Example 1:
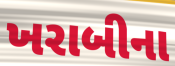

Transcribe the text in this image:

ખરાબીના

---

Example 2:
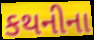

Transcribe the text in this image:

કથનીના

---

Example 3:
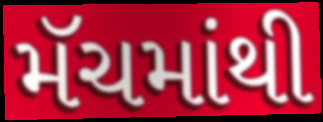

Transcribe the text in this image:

મૅચમાંથી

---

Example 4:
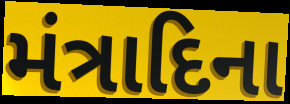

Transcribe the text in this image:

મંત્રાદિના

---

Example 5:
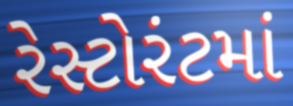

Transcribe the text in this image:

રેસ્ટોરંટમાં